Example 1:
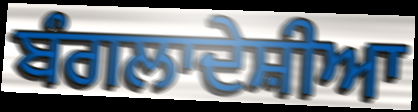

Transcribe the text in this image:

ਬੰਗਲਾਦੇਸ਼ੀਆ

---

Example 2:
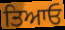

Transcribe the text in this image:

ਤਿਆਓ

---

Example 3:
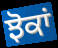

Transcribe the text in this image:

ਝੋਕਾਂ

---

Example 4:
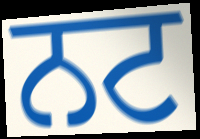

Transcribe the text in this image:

ਨਟ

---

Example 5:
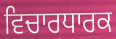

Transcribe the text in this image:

ਵਿਚਾਰਧਾਰਕ